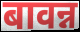
बावन्न